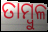
ତାମ୍ୱୁଳ